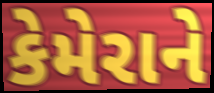
કેમેરાને